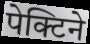
पेक्टिने